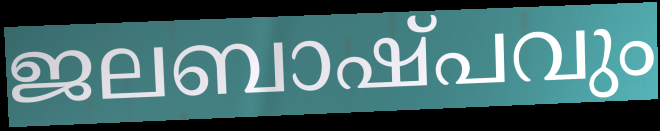
ജലബാഷ്പവും